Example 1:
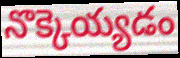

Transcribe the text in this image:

నొక్కెయ్యడం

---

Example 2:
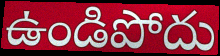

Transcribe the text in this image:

ఉండిపోదు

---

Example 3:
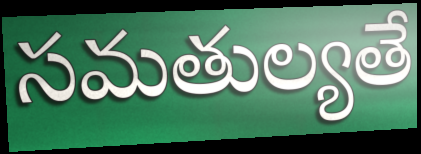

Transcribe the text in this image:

సమతుల్యతే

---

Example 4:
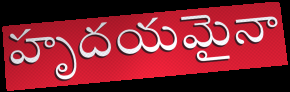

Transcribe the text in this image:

హృదయమైనా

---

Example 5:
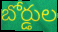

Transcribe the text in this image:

బోర్డుల